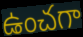
ఉంచగా